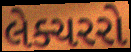
લેક્ચરરો